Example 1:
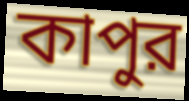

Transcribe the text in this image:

কাপুর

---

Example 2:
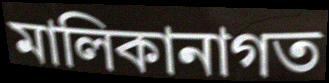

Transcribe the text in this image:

মালিকানাগত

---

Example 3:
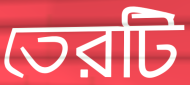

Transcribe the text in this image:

তেরটি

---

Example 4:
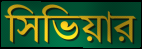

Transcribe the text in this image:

সিভিয়ার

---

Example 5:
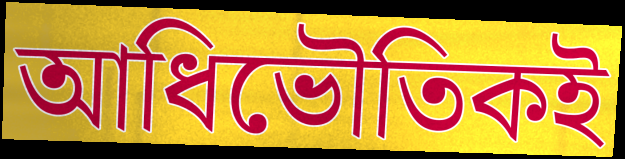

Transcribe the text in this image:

আধিভৌতিকই